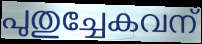
പുതുച്ചേകവന്